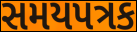
સમયપત્રક